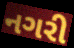
નગરી